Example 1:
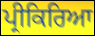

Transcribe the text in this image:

ਪ੍ਰੀਕਿਰਿਆ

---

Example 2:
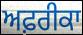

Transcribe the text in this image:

ਅਫ਼ਰੀਕਾ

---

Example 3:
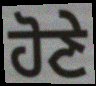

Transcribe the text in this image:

ਹੋਣੇ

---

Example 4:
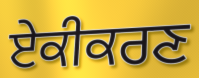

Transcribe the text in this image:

ਏਕੀਕਰਣ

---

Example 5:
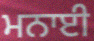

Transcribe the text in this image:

ਮਨਾਈ